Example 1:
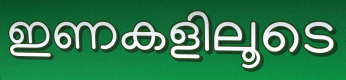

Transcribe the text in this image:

ഇണകളിലൂടെ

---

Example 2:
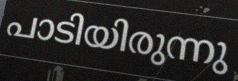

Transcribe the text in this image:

പാടിയിരുന്നു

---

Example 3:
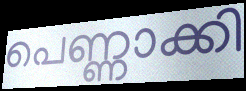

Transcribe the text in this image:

പെണ്ണാക്കി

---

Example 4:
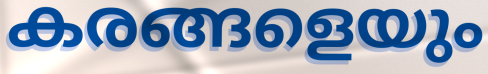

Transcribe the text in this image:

കരങ്ങളെയും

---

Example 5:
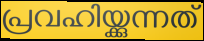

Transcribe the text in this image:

പ്രവഹിയ്ക്കുന്നത്